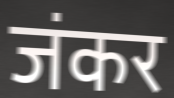
जंकर